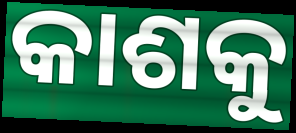
କାଶକୁ